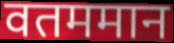
वतममान